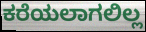
ಕರೆಯಲಾಗಲಿಲ್ಲ